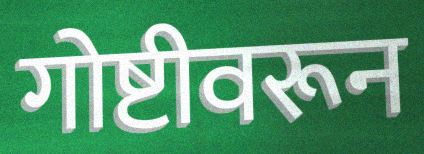
गोष्टीवरून